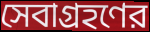
সেবাগ্রহণের